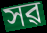
সৱ